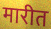
मारीत